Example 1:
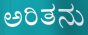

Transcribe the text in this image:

ಅರಿತನು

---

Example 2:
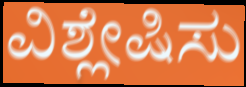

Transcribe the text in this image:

ವಿಶ್ಲೇಷಿಸು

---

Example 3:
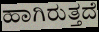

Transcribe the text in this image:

ಹಾಗಿರುತ್ತದೆ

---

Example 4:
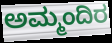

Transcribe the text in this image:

ಅಮ್ಮಂದಿರ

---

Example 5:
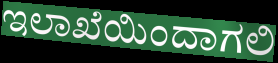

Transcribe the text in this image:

ಇಲಾಖೆಯಿಂದಾಗಲಿ